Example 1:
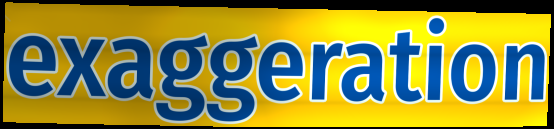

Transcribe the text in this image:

exaggeration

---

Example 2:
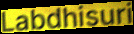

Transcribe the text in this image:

Labdhisuri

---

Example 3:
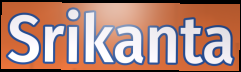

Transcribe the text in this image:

Srikanta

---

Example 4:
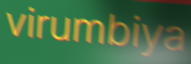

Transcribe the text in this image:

virumbiya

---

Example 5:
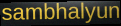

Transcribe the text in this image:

sambhalyun